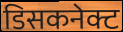
डिसकनेक्ट